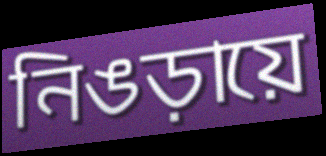
নিঙড়ায়ে